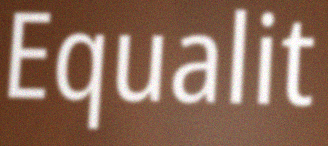
Equalit